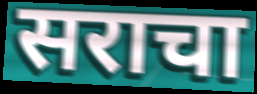
सराचा